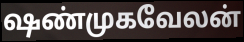
ஷண்முகவேலன்